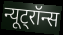
न्यूट्रॉन्स